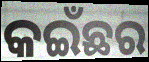
କଇଁଛର